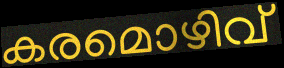
കരമൊഴിവ്